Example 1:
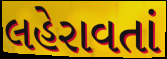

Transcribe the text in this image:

લહેરાવતાં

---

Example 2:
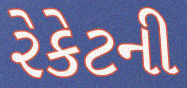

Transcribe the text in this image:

રેકેટની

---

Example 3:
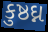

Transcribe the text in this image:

કુષ્ઠઘ્ન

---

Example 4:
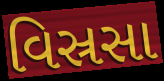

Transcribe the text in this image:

વિસ્રસા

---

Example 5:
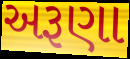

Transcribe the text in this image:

અરૂણા